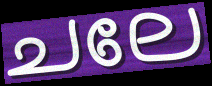
ചലേ